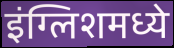
इंग्लिशमध्ये